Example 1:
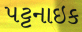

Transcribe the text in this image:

પટ્ટનાઇક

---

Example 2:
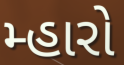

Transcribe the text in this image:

મ્હારો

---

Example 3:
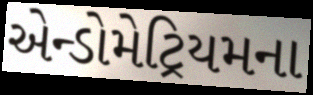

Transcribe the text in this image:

એન્ડોમેટ્રિયમના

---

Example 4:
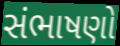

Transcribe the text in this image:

સંભાષણો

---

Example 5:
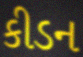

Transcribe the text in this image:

કીડન